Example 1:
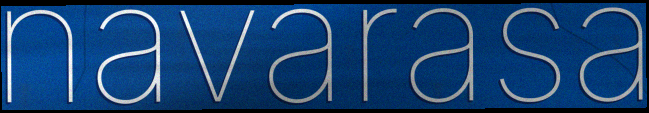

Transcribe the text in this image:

navarasa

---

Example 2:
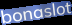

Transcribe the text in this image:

bonaslot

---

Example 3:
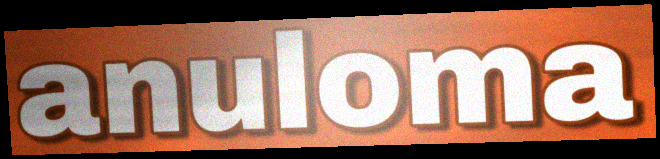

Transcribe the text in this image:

anuloma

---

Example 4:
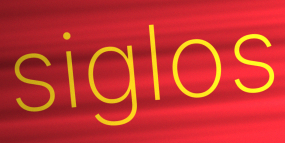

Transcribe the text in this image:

siglos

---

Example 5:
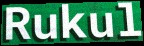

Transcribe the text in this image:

Rukul